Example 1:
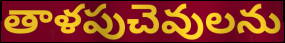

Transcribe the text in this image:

తాళపుచెవులను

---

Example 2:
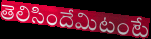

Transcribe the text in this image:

తెలిసిందేమిటంటే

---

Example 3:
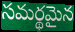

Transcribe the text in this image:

సమర్థమైన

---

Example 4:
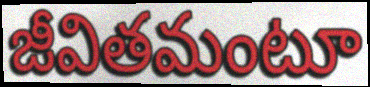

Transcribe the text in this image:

జీవితమంటూ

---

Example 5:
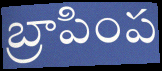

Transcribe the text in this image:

బ్రాపింప